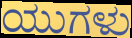
ಯುಗಳು